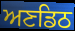
ਅਣਡਿਠ